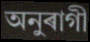
অনুৰাগী